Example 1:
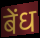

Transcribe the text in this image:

बेंध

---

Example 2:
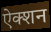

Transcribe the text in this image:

ऐक्‍शन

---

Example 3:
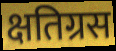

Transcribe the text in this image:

क्षतिग्रस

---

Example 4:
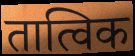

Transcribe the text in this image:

तात्विक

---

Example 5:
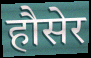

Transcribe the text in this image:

हौसेर